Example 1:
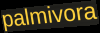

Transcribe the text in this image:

palmivora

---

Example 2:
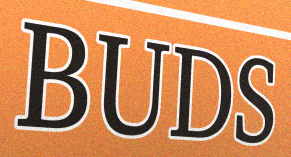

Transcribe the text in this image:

BUDS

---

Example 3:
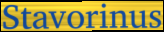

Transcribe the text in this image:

Stavorinus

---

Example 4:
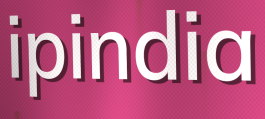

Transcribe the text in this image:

ipindia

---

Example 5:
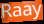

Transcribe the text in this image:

Raay